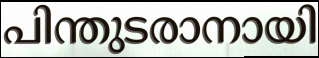
പിന്തുടരാനായി